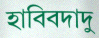
হাবিবদাদু